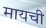
मायची